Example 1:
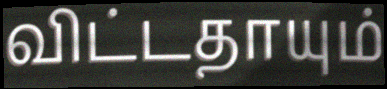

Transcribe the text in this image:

விட்டதாயும்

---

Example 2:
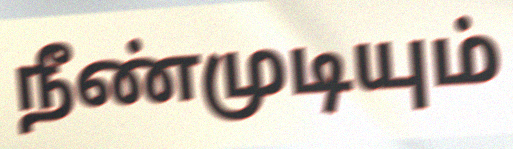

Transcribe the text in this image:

நீண்முடியும்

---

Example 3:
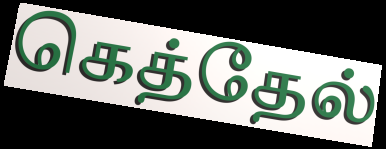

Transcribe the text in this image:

கெத்தேல்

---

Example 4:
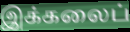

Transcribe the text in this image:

இக்கலைப்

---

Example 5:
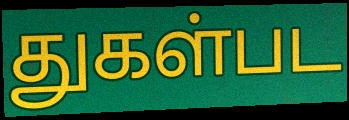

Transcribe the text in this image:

துகள்பட